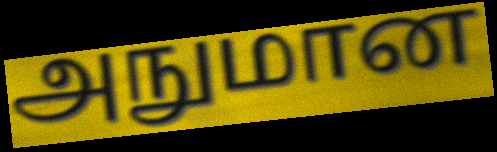
அநுமான